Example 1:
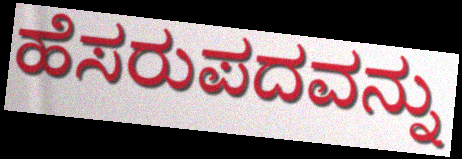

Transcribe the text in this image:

ಹೆಸರುಪದವನ್ನು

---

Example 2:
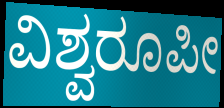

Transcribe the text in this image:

ವಿಶ್ವರೂಪೀ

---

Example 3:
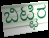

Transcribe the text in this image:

ಬಿಟ್ಟಿರ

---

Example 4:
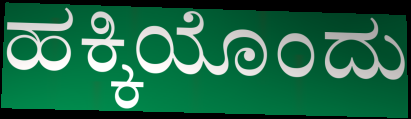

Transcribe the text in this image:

ಹಕ್ಕಿಯೊಂದು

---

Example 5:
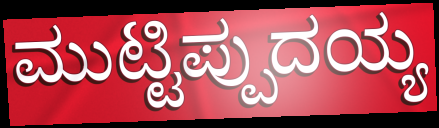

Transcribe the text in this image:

ಮುಟ್ಟಿಪ್ಪುದಯ್ಯ